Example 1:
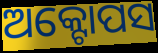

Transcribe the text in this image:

ଅକ୍ଟୋପସ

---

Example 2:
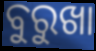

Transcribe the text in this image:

ବୁରୁଖା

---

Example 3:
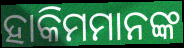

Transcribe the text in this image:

ହାକିମମାନଙ୍କ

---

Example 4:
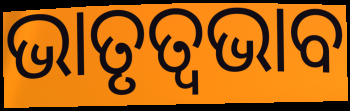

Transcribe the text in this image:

ଭାତୃତ୍ବଭାବ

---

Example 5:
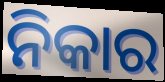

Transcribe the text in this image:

ନିକାର